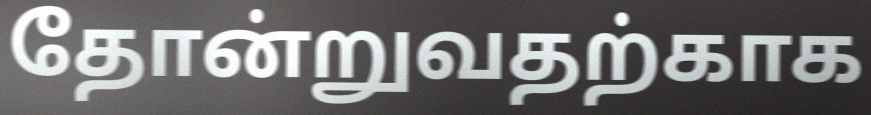
தோன்றுவதற்காக